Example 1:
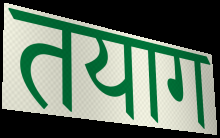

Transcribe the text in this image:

तयाग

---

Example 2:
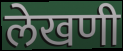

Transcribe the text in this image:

लेखणी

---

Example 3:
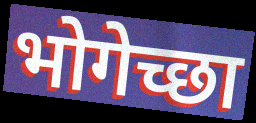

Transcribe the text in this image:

भोगेच्छा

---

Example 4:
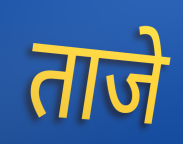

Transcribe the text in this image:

ताजे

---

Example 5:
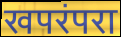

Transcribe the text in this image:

खपरंपरा